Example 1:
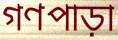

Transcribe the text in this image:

গণপাড়া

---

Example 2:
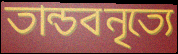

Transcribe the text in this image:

তান্ডবনৃত্যে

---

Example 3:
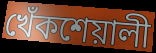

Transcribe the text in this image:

খেঁকশেয়ালী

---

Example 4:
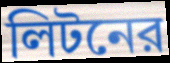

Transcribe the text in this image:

লিটনের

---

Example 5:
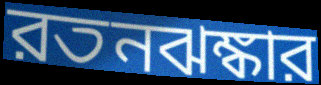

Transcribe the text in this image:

রতনঝঙ্কার